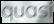
quasi